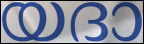
യദാ